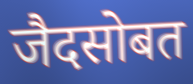
जैदसोबत